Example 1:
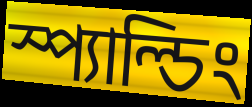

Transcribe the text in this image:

স্প্যাল্ডিং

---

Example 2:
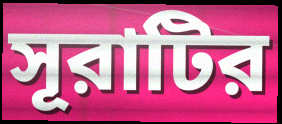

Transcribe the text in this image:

সূরাটির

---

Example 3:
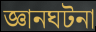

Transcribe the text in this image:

জ্ঞানঘটনা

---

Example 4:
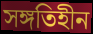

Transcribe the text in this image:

সঙ্গতিহীন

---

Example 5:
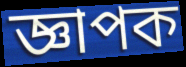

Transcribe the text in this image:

জ্ঞাপক